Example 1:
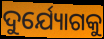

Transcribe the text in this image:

ଦୁର୍ଯ୍ୟୋଗକୁ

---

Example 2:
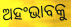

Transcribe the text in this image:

ଅହଂଭାବକୁ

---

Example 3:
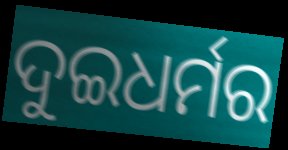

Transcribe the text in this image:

ଦୁଇଧର୍ମର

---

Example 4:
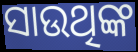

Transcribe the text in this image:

ସାଉଥିଙ୍କ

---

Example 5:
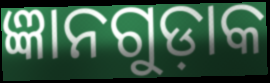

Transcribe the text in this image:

ଜ୍ଞାନଗୁଡ଼ାକ